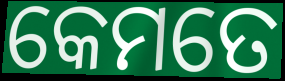
କେମତେ